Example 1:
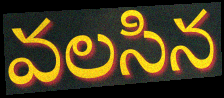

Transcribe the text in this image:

వలసిన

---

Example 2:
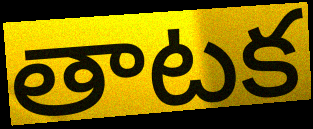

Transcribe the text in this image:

తాటక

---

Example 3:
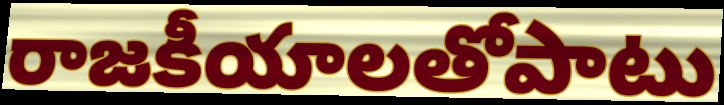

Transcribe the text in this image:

రాజకీయాలతోపాటు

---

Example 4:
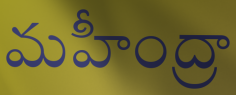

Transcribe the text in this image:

మహీంద్రా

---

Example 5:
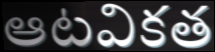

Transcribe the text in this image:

ఆటవికత